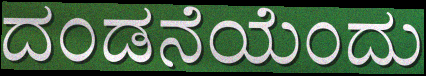
ದಂಡನೆಯೆಂದು